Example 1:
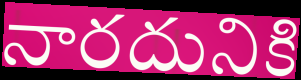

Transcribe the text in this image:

నారదునికి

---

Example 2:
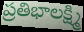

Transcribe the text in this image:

ప్రతిభాలక్ష్మి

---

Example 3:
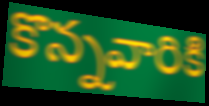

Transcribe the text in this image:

కొన్నవారికి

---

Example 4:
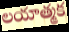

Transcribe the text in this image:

లయాత్మక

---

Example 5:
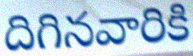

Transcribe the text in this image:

దిగినవారికి